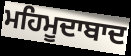
ਮਹਿਮੂਦਾਬਾਦ